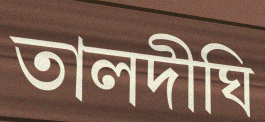
তালদীঘি